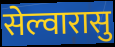
सेल्वारासु